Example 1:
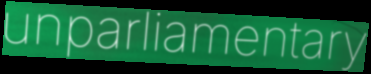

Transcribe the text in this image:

unparliamentary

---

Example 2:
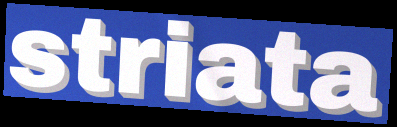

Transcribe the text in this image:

striata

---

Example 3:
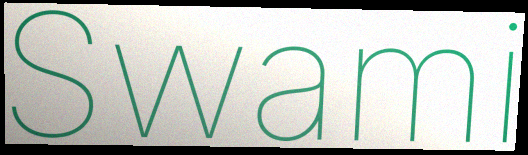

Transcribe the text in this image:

Swami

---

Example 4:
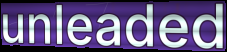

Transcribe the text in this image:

unleaded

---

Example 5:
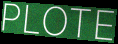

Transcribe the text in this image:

PLOTE